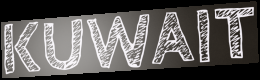
KUWAIT